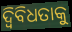
ଦ୍ୱିବିଧତାକୁ